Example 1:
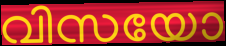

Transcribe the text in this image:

വിസയോ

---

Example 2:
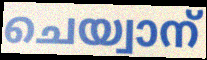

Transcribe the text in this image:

ചെയ്വാന്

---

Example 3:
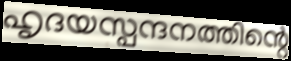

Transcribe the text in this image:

ഹൃദയസ്പന്ദനത്തിന്റെ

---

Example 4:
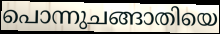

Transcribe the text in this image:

പൊന്നുചങ്ങാതിയെ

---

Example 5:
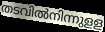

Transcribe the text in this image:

തടവിൽനിന്നുളള